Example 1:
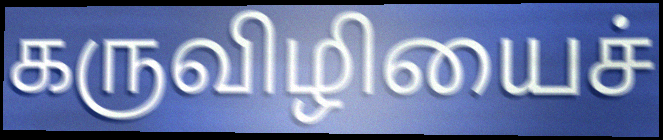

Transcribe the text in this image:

கருவிழியைச்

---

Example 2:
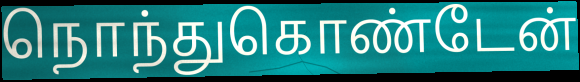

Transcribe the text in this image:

நொந்துகொண்டேன்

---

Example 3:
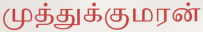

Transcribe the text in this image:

முத்துக்குமரன்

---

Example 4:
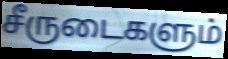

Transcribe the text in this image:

சீருடைகளும்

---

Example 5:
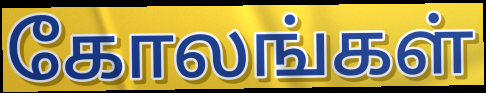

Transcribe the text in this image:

கோலங்கள்